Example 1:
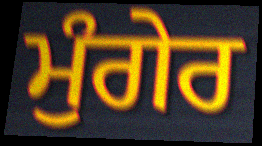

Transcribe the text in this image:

ਮੁੰਗੇਰ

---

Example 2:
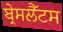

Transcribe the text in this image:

ਬ੍ਰੇਸਲੈੱਟਸ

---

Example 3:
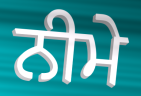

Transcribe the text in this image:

ਨੀਮੇ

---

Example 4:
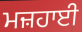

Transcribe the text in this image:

ਮਜ਼ਹਾਈ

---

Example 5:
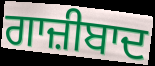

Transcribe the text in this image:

ਗਾਜ਼ੀਬਾਦ